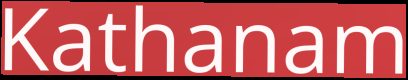
Kathanam